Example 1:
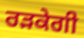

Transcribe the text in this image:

ਰੜਕੇਗੀ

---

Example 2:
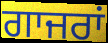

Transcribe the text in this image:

ਗਾਜਰਾਂ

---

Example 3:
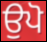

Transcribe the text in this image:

ਉਪੋ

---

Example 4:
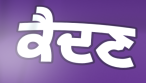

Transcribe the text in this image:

ਕੈਦਣ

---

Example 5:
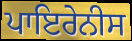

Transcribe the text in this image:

ਪਾਇਰੇਨੀਸ